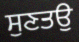
ਸੁਣਤਉ